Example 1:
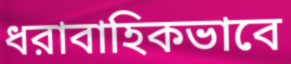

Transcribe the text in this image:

ধরাবাহিকভাবে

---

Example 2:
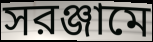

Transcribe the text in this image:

সরঞ্জামে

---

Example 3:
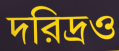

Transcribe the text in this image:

দরিদ্রও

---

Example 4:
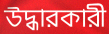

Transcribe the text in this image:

উদ্ধারকারী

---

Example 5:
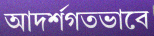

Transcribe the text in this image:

আদর্শগতভাবে